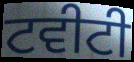
ਟਵੀਟੀ